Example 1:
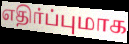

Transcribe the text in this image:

எதிர்ப்புமாக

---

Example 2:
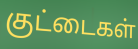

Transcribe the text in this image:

குட்டைகள்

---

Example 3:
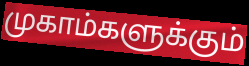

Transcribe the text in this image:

முகாம்களுக்கும்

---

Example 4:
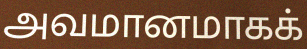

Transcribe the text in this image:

அவமானமாகக்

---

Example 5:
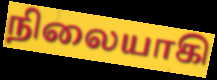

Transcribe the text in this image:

நிலையாகி